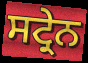
ਸਟ੍ਰੇਨ